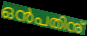
ഒൻപതിനു്